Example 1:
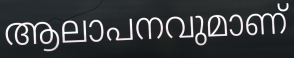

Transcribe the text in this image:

ആലാപനവുമാണ്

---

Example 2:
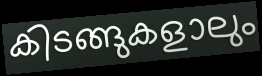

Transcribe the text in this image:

കിടങ്ങുകളാലും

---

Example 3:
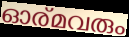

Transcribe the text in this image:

ഓര്മവരും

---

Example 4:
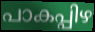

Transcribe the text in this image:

പാകപ്പിഴ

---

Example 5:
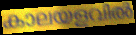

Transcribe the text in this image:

കാലയളവിൽ